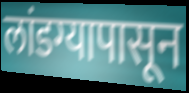
लांडग्यापासून